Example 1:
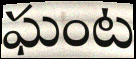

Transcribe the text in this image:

ఘంట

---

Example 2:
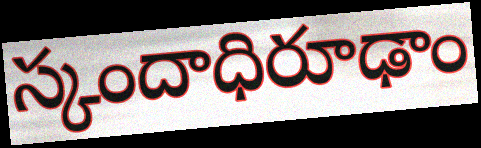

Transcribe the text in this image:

స్కందాధిరూఢాం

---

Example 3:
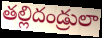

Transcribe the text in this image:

తల్లిదండ్రులా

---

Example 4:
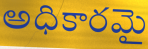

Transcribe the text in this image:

అధికారమై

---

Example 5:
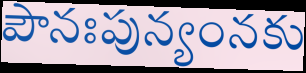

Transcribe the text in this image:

పౌనఃపున్యంనకు